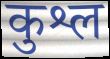
कुश्ल